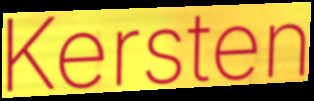
Kersten